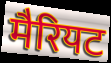
मैरियट